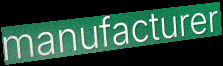
manufacturer